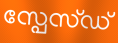
സ്പേസ്ഡ്